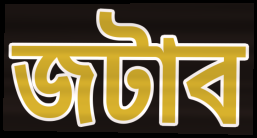
জটাব